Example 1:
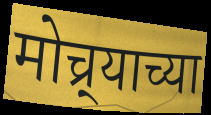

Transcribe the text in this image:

मोच्र्याच्या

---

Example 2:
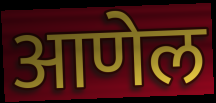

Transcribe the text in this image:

आणेल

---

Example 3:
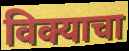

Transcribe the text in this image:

विक्याचा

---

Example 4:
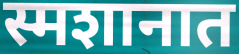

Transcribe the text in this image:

स्मशानात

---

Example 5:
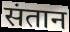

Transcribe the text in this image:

संतान